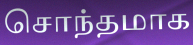
சொந்தமாக